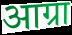
आग्रा